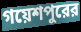
গয়েশপুরের